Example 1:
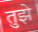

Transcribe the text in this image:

तुझे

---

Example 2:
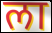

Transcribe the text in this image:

ला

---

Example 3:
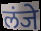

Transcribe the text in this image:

लंजे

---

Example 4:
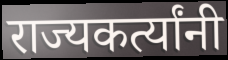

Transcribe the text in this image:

राज्यकर्त्यांनी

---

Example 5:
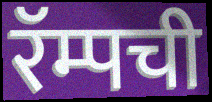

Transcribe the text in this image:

रॅम्पची